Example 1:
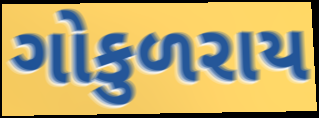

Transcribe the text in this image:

ગોકુળરાય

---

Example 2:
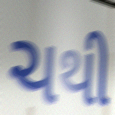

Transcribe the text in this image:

ચથી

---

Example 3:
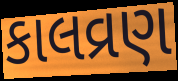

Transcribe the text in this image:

કાલવ્રણ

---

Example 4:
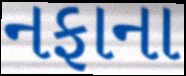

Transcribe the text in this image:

નફાના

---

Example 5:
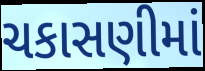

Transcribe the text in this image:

ચકાસણીમાં